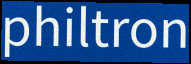
philtron